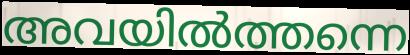
അവയിൽത്തന്നെ